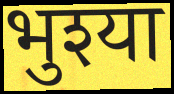
भुश्या